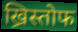
ख्रिस्तोफ